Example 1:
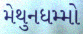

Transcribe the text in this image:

મેથુનધમ્મો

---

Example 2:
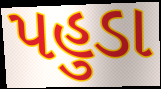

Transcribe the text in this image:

પહુડા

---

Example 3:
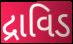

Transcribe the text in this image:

દ્રાવિડ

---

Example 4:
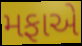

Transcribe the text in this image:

મફાએ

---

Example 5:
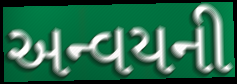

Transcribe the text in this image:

અન્વયની